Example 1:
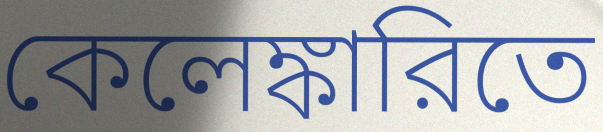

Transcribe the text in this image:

কেলেঙ্কারিতে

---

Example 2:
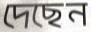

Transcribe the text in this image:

দেছেন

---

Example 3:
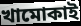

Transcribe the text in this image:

খামোকাই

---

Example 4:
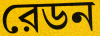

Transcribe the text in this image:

রেডন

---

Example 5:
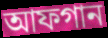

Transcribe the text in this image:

আফগান